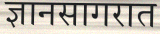
ज्ञानसागरात